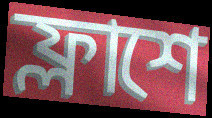
ফ্লাশে